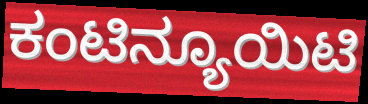
ಕಂಟಿನ್ಯೂಯಿಟಿ